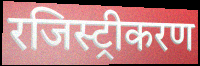
रजिस्‍ट्रीकरण